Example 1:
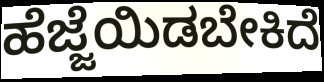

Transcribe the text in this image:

ಹೆಜ್ಜೆಯಿಡಬೇಕಿದೆ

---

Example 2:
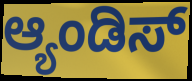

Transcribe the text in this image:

ಆ್ಯಂಡಿಸ್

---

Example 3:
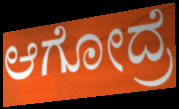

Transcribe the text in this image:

ಆಗೋದ್ರೆ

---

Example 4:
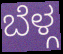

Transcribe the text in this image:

ಬೆಳ್ಗ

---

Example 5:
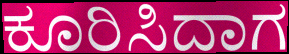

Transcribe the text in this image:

ಕೂರಿಸಿದಾಗ